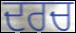
ਦਰਚ